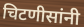
चिटणीसांनी